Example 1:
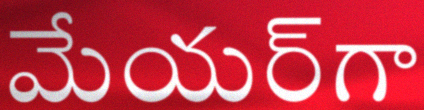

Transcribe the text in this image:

మేయర్‌గా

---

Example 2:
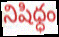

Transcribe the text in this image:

నిషిధ్ధం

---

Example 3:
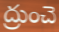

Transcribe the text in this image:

ద్రుంచె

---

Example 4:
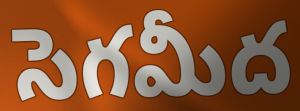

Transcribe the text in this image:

సెగమీద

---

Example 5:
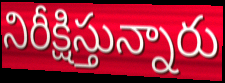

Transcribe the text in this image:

నిరీక్షిస్తున్నారు